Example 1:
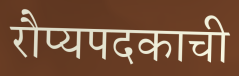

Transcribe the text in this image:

रौप्यपदकाची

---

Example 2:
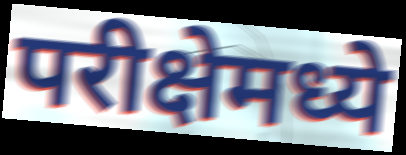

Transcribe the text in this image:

परीक्षेमध्ये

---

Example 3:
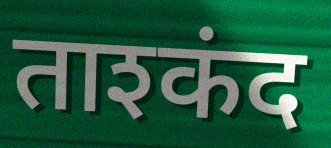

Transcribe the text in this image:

ताश्कंद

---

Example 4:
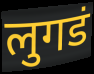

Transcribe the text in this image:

लुगडं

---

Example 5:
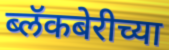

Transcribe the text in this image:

ब्लॅकबेरीच्या